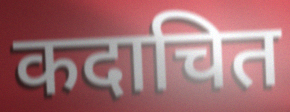
कदाचित